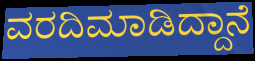
ವರದಿಮಾಡಿದ್ದಾನೆ